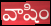
వాషిం